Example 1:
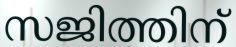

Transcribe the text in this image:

സജിത്തിന്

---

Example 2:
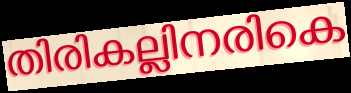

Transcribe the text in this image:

തിരികല്ലിനരികെ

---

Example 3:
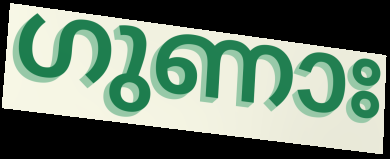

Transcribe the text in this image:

ഗുണാഃ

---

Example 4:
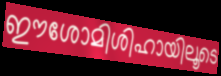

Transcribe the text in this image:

ഈശോമിശിഹായിലൂടെ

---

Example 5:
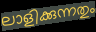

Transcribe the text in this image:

ലാളിക്കുന്നതും